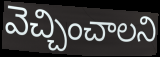
వెచ్చించాలని